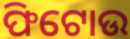
ଫିଟୋଉ